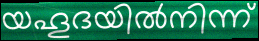
യഹൂദയിൽനിന്ന്